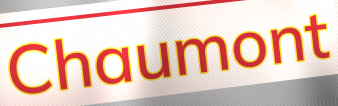
Chaumont